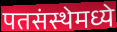
पतसंस्थेमध्ये